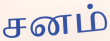
சனம்